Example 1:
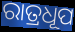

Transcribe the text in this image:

ରାତ୍ରଧୂପ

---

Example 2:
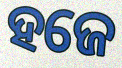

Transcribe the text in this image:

ହଜେ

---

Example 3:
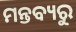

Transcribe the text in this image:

ମନ୍ତବ୍ୟରୁ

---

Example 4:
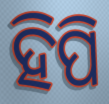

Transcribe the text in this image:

ହିପି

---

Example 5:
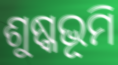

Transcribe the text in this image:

ଶୁଷ୍କଭୂମି